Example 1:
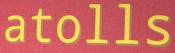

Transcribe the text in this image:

atolls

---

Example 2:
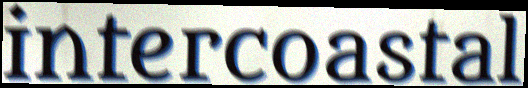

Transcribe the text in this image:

intercoastal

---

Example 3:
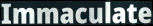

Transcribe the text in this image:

Immaculate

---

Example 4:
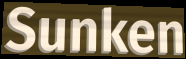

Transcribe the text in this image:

Sunken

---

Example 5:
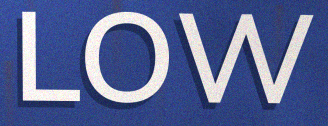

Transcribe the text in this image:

LOW